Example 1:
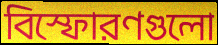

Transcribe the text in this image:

বিস্ফোরণগুলো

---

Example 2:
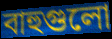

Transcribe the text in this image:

বাহুগুলো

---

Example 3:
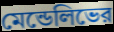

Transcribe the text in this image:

মেন্ডেলিভের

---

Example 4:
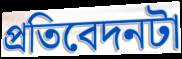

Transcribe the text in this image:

প্রতিবেদনটা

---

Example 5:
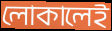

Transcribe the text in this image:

লোকালেই